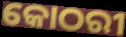
କୋଠରୀ